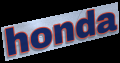
honda